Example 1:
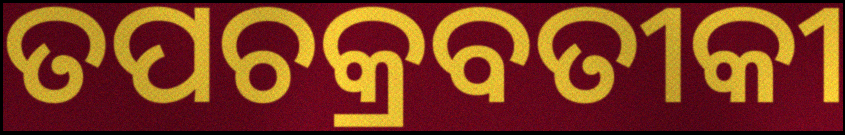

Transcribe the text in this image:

ତପଚକ୍ରବତୀକୀ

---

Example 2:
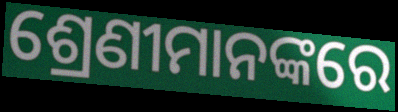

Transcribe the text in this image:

ଶ୍ରେଣୀମାନଙ୍କରେ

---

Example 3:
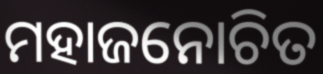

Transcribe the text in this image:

ମହାଜନୋଚିତ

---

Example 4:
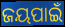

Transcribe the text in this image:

ଜୟପାଇଁ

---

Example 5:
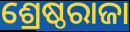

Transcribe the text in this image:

ଶ୍ରେଷ୍ଠରାଜା